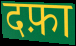
दफ़ा